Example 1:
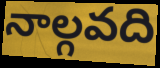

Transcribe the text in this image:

నాల్గవది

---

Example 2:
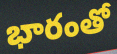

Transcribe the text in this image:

భారంతో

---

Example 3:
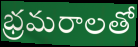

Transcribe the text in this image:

భ్రమరాలతో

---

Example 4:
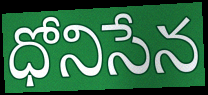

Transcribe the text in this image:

ధోనిసేన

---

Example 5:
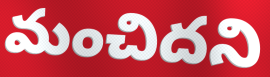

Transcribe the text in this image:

మంచిదని